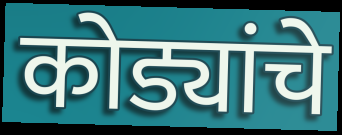
कोड्यांचे